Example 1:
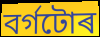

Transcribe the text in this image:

বৰ্গটোৰ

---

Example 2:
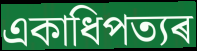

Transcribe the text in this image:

একাধিপত্যৰ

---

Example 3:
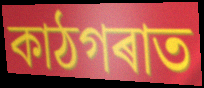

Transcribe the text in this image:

কাঠগৰাত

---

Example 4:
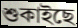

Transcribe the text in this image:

শুকাইছে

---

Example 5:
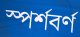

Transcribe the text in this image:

স্পৰ্শবৰ্ণ